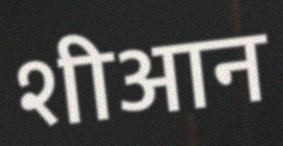
शीआन